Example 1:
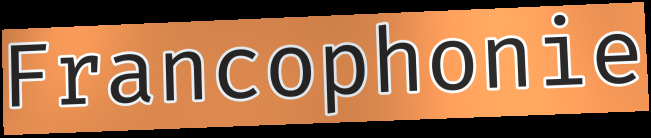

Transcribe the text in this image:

Francophonie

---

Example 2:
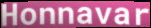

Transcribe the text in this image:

Honnavar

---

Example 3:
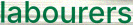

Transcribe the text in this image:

labourers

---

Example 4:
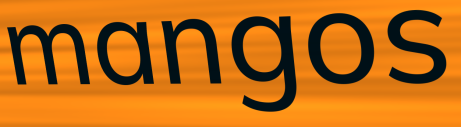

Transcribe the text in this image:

mangos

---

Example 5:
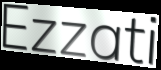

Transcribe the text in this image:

Ezzati